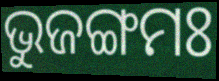
ଭୁଜଙ୍ଗମଃ